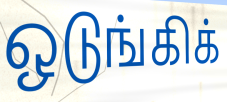
ஒடுங்கிக்